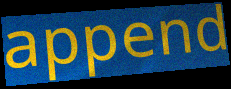
append